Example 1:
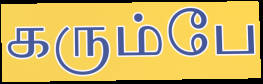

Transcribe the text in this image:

கரும்பே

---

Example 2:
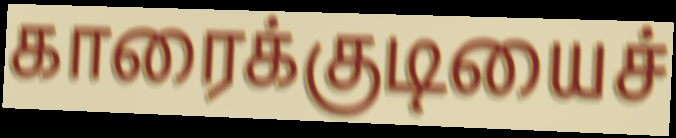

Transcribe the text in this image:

காரைக்குடியைச்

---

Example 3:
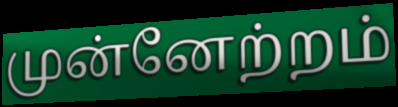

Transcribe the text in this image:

முன்னேற்றம்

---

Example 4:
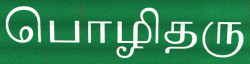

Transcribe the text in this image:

பொழிதரு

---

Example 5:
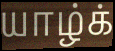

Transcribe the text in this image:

யாழ்க்